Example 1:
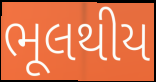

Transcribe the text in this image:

ભૂલથીય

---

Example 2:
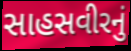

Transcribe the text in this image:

સાહસવીરનું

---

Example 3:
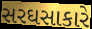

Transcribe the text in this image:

સરઘસાકારે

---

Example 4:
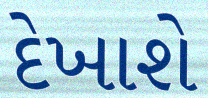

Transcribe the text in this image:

દેખાશે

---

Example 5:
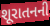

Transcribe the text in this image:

શૂરાતનની